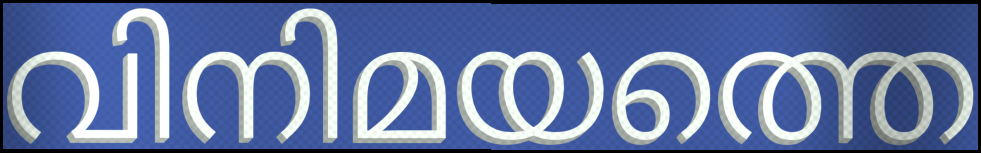
വിനിമയത്തെ